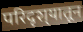
परिदृश्यातून